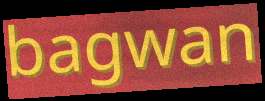
bagwan